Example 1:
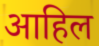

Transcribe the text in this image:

आहिल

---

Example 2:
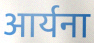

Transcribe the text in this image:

आर्यना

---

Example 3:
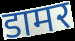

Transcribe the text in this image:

डामर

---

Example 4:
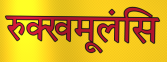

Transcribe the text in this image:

रुक्खमूलंसि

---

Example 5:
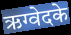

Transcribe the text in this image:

ऋग्वेदके